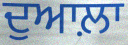
ਦੁਆਲ਼ਾ